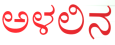
ಅಳಲಿನ